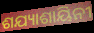
ଶଯ୍ୟାଶାୟିନୀ